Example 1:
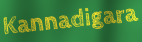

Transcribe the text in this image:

Kannadigara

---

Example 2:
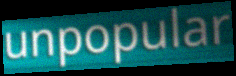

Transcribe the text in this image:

unpopular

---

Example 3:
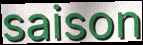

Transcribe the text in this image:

saison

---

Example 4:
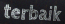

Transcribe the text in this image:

terbaik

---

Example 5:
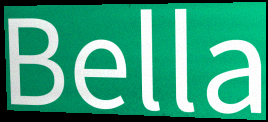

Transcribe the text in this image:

Bella